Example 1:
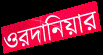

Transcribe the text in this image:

ওরদানিয়ার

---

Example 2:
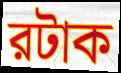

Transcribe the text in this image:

রটাক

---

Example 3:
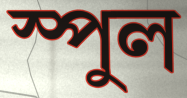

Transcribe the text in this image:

স্পুল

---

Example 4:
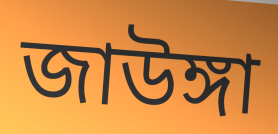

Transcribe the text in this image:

জাউঙ্গা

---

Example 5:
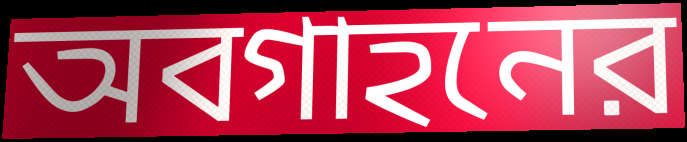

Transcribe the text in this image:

অবগাহনের